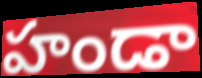
హండా